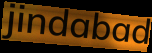
jindabad